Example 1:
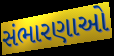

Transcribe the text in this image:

સંભારણાઓ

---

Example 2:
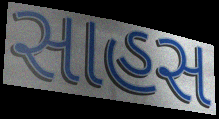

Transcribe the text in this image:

સાહસ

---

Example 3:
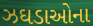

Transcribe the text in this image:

ઝઘડાઓના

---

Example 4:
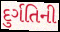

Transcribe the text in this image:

દુર્ગતિની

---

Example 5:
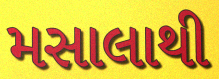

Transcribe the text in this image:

મસાલાથી